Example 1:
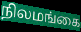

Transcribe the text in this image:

நிலமங்கை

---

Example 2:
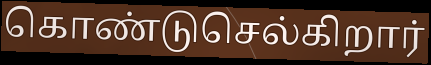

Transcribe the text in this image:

கொண்டுசெல்கிறார்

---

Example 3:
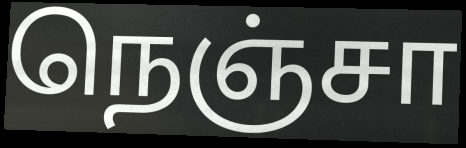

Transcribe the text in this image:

நெஞ்சா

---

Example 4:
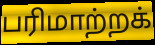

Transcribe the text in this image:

பரிமாற்றக்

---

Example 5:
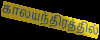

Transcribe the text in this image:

காலயந்திரத்தில்